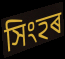
সিংহৰ